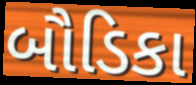
બૌડિકા